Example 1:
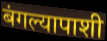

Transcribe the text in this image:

बंगल्यापाशी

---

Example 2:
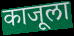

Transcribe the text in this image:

काजूला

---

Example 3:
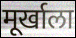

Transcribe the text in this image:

मूर्खाला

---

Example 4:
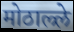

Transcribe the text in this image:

मोठाल्ले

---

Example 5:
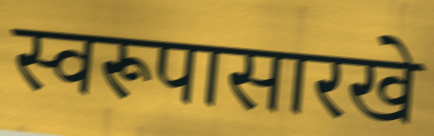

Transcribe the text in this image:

स्वरूपासारखे